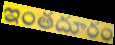
ఇంతదూరం